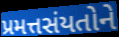
પ્રમત્તસંયતોને